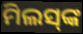
ମିଲସ୍‍ଙ୍କ